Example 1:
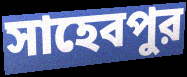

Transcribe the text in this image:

সাহেবপুর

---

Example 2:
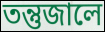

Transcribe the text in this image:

তন্তুজালে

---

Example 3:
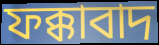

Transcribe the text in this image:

ফক্কাবাদ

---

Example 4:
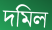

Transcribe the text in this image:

দমিল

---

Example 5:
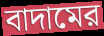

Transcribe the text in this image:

বাদামের